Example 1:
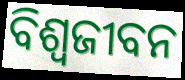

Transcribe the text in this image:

ବିଶ୍ଵଜୀବନ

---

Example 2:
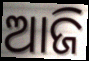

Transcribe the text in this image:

ଆଜି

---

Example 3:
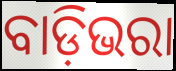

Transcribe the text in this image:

ବାଡ଼ିଭରା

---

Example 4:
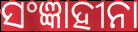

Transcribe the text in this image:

ସଂଜ୍ଞାହୀନା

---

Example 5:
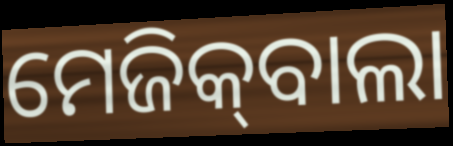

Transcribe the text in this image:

ମେଜିକ୍‍ବାଲା